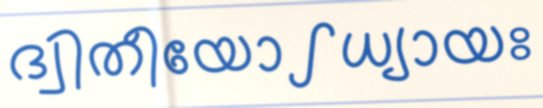
ദ്വിതീയോഽധ്യായഃ